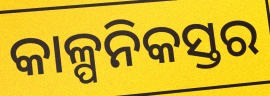
କାଳ୍ପନିକସ୍ତର